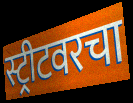
स्ट्रीटवरचा